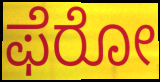
ಫೆರೋ